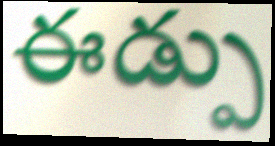
ఈడ్పు